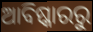
ଆବିଷ୍କାରରୁ